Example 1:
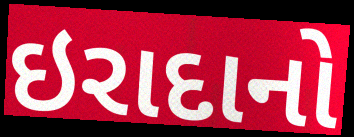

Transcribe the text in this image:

ઇરાદાનો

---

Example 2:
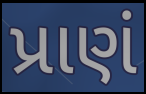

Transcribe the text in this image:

પ્રાણં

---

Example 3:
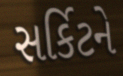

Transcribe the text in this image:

સર્કિટને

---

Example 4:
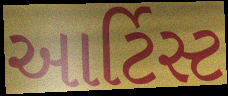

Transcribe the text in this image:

આર્ટિસ્ટ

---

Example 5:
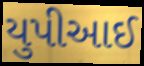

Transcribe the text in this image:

યુપીઆઈ